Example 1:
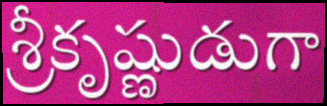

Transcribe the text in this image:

శ్రీకృష్ణుడుగా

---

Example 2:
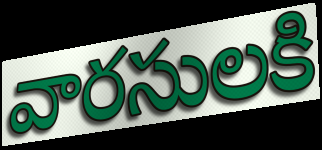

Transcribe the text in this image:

వారసులకి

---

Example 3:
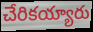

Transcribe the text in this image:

చేరికయ్యారు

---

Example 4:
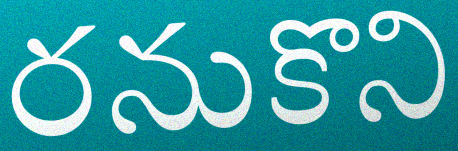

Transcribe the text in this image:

రనుకొని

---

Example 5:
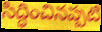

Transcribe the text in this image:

సిద్ధించినప్పటి